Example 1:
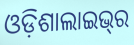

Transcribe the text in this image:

ଓଡ଼ିଶାଲାଇଭ୍‌ର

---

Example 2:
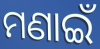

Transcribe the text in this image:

ମଣାଇଁ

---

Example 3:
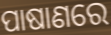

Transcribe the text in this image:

ପାଷାଣରେ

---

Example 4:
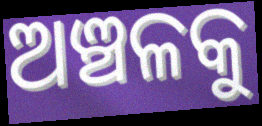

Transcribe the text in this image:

ଅଞ୍ଚଳକୁ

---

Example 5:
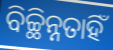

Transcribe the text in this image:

ବିଚ୍ଛିନ୍ନତାହିଁ